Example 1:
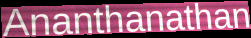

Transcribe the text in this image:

Ananthanathan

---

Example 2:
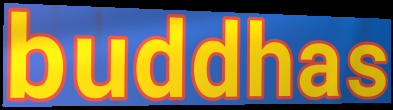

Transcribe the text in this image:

buddhas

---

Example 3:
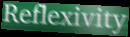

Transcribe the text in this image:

Reflexivity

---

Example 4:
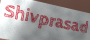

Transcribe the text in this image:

Shivprasad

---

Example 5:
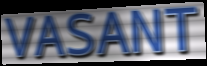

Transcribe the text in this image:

VASANT